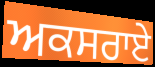
ਅਕਸਰਾਏ